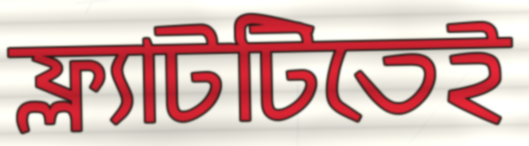
ফ্ল্যাটটিতেই